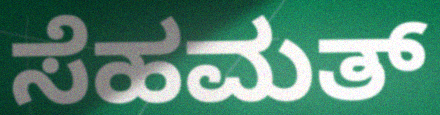
ಸೆಹಮತ್